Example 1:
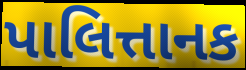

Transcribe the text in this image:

પાલિત્તાનક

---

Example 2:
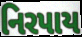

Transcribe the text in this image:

નિરપાય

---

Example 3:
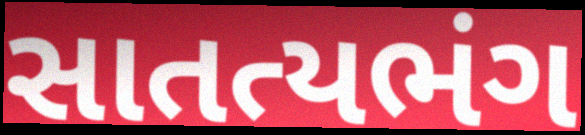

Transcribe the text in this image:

સાતત્યભંગ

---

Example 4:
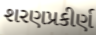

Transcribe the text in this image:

શરણપ્રકીર્ણ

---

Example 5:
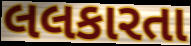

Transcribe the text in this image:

લલકારતા